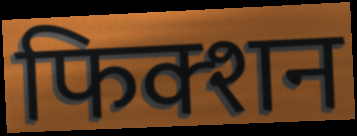
फिक्‍शन